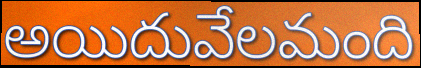
అయిదువేలమంది